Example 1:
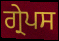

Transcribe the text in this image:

ਗ੍ਰੇਪਸ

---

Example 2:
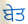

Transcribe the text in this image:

ਬੇਤ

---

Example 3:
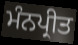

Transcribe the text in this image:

ਮੰਨਪ੍ਰੀਤ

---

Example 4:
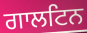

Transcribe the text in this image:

ਗਾਲਟਿਨ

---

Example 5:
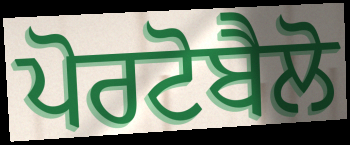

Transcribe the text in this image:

ਪੋਰਟੋਬੈਲੋ